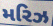
મરિઝ